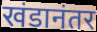
खंडानंतर